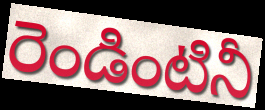
రెండింటినీ